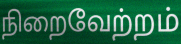
நிறைவேற்றம்